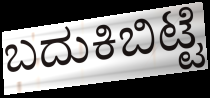
ಬದುಕಿಬಿಟ್ಟೆ